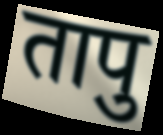
तापु